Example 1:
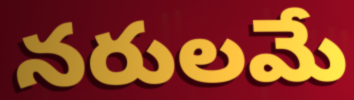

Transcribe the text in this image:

నరులమే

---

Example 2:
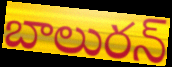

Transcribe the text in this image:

బాలురన్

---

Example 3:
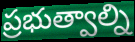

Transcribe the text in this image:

ప్రభుత్వాల్ని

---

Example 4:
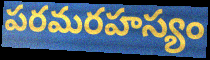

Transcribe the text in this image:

పరమరహస్యం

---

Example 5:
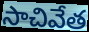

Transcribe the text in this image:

సాచివేత